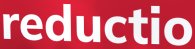
reductio